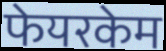
फेयरकेम